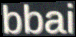
bbai